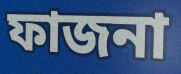
ফাজনা